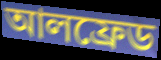
আলফ্ৰেড